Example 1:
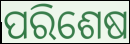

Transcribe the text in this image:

ପରିଶେଷ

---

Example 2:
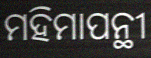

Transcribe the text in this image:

ମହିମାପନ୍ଥୀ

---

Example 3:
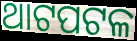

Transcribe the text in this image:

ଥାଟପଟଳ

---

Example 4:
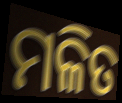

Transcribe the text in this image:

ମଳିତ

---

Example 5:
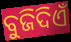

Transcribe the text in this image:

ବୁଜିଦିଏଁ